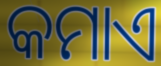
କମାଏ